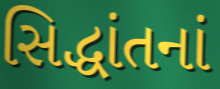
સિદ્ધાંતનાં